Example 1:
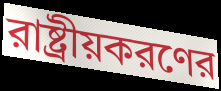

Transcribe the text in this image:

রাষ্ট্রীয়করণের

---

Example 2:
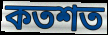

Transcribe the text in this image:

কতশত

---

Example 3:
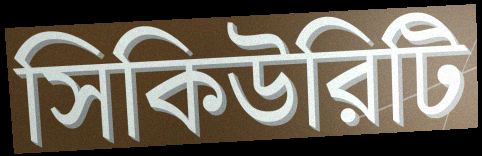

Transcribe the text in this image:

সিকিউরিটি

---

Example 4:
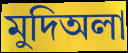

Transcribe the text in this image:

মুদিঅলা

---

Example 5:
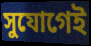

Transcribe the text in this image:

সুযোগেই